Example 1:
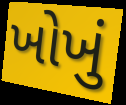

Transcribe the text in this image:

ખોખું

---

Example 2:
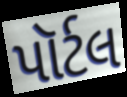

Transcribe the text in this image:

પૉર્ટલ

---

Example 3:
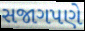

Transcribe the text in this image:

સજાગપણે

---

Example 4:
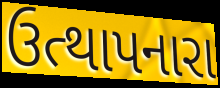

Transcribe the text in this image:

ઉત્થાપનારા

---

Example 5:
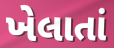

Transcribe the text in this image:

ખેલાતાં